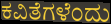
ಕವಿತೆಗಳೆಂದು